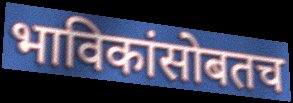
भाविकांसोबतच